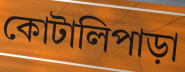
কোটালিপাড়া